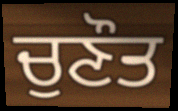
ਚੁਣੌਤ